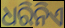
ଧରିନିଏ